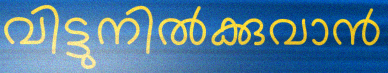
വിട്ടുനിൽക്കുവാൻ